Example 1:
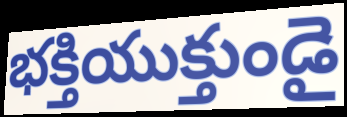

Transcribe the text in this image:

భక్తియుక్తుండై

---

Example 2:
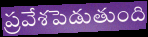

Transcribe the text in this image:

ప్రవేశపెడుతుంది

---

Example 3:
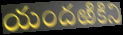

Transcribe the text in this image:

యందఱికిని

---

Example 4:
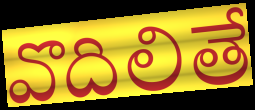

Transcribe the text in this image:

వొదిలితే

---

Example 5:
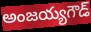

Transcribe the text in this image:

అంజయ్యగౌడ్